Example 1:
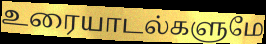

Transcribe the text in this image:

உரையாடல்களுமே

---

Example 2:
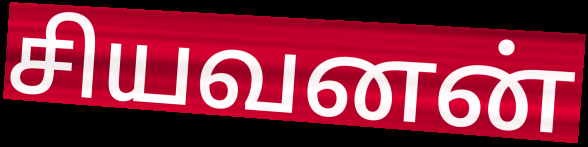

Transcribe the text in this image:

சியவனன்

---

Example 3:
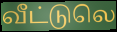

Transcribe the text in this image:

வீட்டுலெ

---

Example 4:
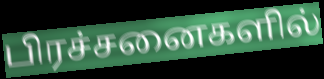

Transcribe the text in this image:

பிரச்சனைகளில்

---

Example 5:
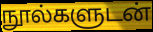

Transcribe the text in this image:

நூல்களுடன்